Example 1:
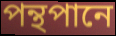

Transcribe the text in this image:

পন্থপানে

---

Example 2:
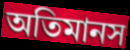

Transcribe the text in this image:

অতিমানস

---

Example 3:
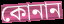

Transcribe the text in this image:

কোনান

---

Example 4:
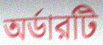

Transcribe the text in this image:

অর্ডারটি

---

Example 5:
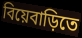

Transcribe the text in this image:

বিয়েবাড়িতে